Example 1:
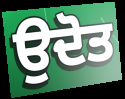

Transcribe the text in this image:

ਉਦੋਤ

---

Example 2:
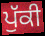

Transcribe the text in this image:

ਪੁੱਕੀ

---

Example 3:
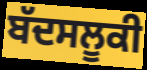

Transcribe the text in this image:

ਬੱਦਸਲੂਕੀ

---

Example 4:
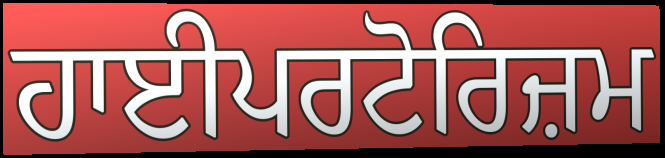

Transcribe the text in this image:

ਹਾਈਪਰਟੋਰਿਜ਼ਮ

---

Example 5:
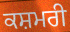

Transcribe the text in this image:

ਕਸ਼ਮਰੀ